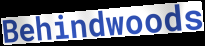
Behindwoods